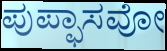
ಪುಪ್ಫಾಸವೋ